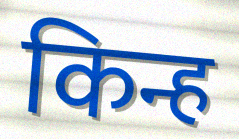
किन्ह